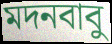
মদনবাবু